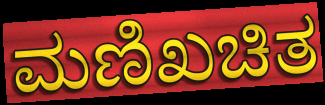
ಮಣಿಖಚಿತ